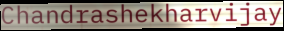
Chandrashekharvijay